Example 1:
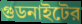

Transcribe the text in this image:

গুডনাইটের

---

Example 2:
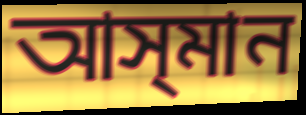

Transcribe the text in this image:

আস্‌মান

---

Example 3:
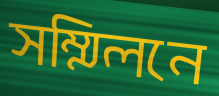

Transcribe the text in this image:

সম্মিলনে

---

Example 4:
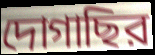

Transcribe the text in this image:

দোগাছির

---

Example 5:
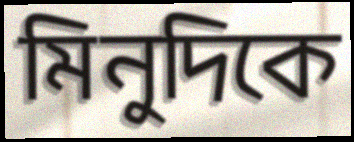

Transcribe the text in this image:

মিনুদিকে